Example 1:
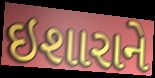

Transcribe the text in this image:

ઇશારાને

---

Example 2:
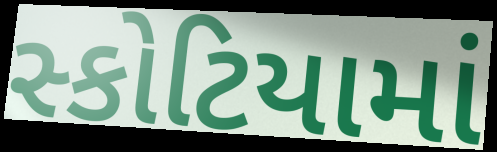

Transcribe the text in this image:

સ્કોટિયામાં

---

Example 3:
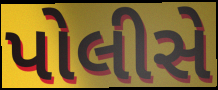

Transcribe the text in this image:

પોલીસે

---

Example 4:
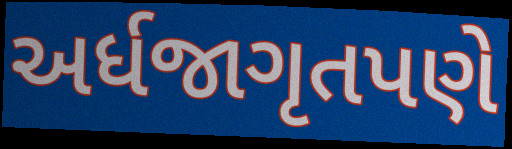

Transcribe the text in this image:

અર્ધજાગૃતપણે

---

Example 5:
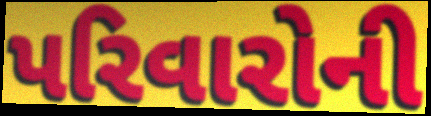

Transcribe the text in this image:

પરિવારોની